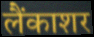
लैंकाशर